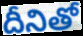
దీనితో